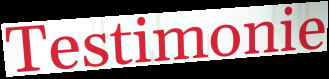
Testimonie